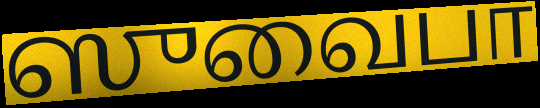
ஸுவைபா